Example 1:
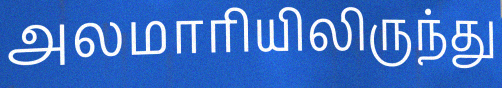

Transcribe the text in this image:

அலமாரியிலிருந்து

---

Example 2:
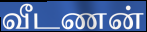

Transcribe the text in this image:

வீடணன்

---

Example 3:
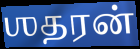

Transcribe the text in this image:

ஶதரன்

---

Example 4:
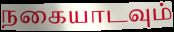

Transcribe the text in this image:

நகையாடவும்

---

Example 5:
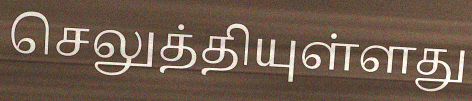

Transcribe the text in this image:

செலுத்தியுள்ளது